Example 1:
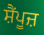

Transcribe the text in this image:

ਸ਼ੈਂਪੂਜ਼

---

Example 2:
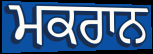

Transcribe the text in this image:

ਮਕਰਾਨ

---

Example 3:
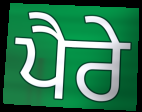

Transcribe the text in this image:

ਪੈਰੇ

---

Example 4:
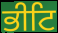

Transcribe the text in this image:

ਭੀਟਿ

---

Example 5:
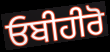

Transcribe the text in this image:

ਓਬੀਹੀਰੋ